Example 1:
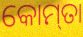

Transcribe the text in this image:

କୋମ୍‌ତା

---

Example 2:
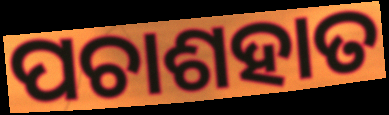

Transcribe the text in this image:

ପଚାଶହାତ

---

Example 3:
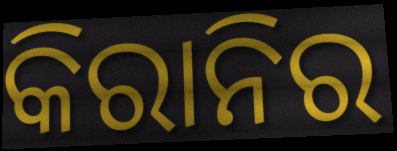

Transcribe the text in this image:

କିରାନିର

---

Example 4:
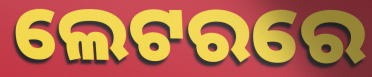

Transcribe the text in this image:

ଲେଟରରେ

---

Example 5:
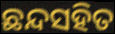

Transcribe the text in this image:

ଛନ୍ଦସହିତ